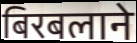
बिरबलाने